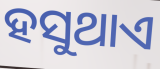
ହସୁଥାଏ